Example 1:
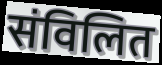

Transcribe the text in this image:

संविलित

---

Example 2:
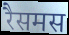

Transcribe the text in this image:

रैसमस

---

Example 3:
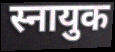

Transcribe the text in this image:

स्नायुक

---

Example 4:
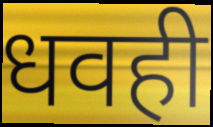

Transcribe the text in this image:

धवही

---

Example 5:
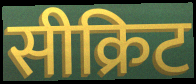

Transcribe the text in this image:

सीक्रिट